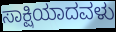
ಸಾಕ್ಷಿಯಾದವಳು